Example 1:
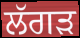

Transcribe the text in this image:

ਲੱਗੜ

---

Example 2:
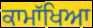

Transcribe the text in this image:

ਕਾਮਾੱਖਿਆ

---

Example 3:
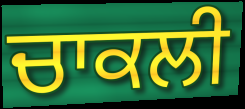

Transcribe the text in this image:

ਚਾਕਲੀ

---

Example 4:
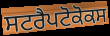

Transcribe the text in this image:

ਸਟਰੈਪਟੋਕੋਕਸ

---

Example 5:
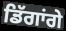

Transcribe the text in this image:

ਡਿੱਗਾਂਗੇ